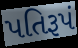
પતિરૂપં